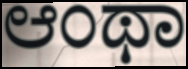
ಆಂಥಾ